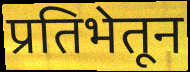
प्रतिभेतून